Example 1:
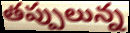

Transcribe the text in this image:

తప్పులున్న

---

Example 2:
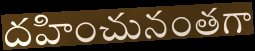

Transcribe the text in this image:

దహించునంతగా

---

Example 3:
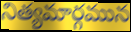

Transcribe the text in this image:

నిత్యమార్గమున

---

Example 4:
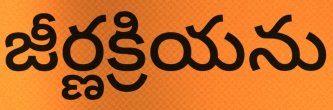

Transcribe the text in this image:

జీర్ణక్రియను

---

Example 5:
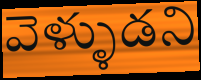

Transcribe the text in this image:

వెళ్ళుడని